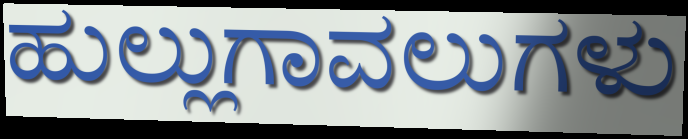
ಹುಲ್ಲುಗಾವಲುಗಳು